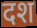
दश